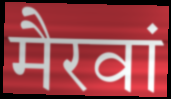
मैरवां